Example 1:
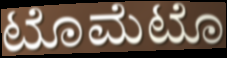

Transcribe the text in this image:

ಟೊಮೆಟೊ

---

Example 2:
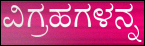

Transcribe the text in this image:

ವಿಗ್ರಹಗಳನ್ನ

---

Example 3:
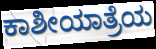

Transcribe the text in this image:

ಕಾಶೀಯಾತ್ರೆಯ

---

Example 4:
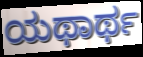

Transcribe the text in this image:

ಯಥಾರ್ಥ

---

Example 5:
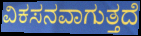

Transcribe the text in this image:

ವಿಕಸನವಾಗುತ್ತದೆ